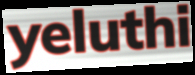
yeluthi